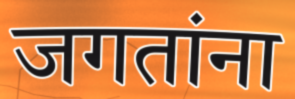
जगतांना